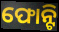
ଫୋନ୍ଟି